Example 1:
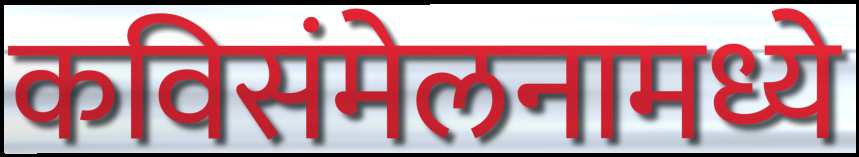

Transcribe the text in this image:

कविसंमेलनामध्ये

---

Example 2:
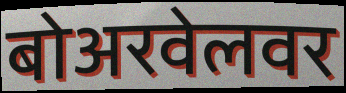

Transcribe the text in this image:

बोअरवेलवर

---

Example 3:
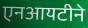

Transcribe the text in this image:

एनआयटीने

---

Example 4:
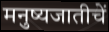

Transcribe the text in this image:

मनुष्यजातीचें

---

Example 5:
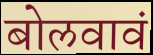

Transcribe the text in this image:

बोलवावं